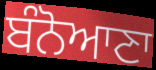
ਬੰਨੋਆਣਾ